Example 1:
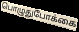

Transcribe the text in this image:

பொழுதுபோக்கை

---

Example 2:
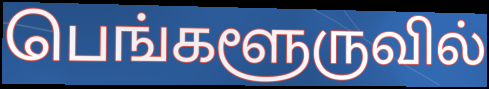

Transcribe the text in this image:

பெங்களூருவில்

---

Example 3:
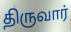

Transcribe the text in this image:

திருவார்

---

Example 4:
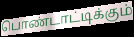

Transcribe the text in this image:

பொண்டாட்டிக்கும்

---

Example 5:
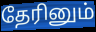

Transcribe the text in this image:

தேரினும்